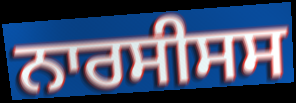
ਨਾਰਸੀਸਸ